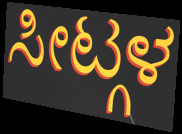
ಸೀಟ್ಗಳ